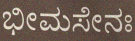
ಭೀಮಸೇನಃ